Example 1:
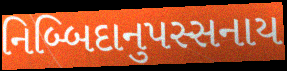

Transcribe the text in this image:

નિબ્બિદાનુપસ્સનાય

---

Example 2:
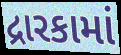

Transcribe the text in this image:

દ્રારકામાં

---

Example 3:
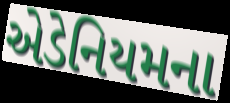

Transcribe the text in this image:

એડેનિયમના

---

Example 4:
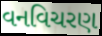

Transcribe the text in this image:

વનવિચરણ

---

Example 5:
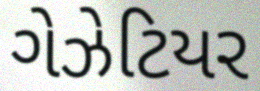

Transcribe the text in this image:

ગેઝેટિયર